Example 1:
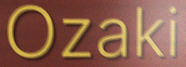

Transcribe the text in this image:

Ozaki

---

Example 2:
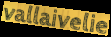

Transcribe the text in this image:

vallaivelie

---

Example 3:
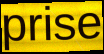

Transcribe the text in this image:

prise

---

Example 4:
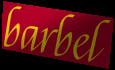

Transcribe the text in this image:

barbel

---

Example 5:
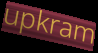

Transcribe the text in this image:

upkram